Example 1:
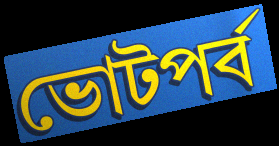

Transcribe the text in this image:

ভোটপর্ব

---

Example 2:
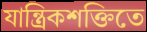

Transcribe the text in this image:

যান্ত্রিকশক্তিতে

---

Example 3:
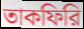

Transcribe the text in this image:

তাকফিরি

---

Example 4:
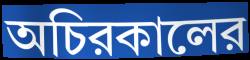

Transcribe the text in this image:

অচিরকালের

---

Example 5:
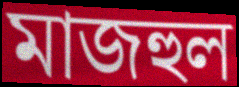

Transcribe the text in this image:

মাজহুল